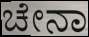
ಚೇನಾ